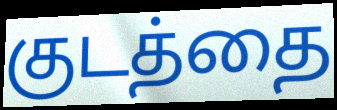
குடத்தை